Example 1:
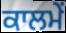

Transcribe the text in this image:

ਕਾਲਮੇਂ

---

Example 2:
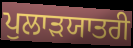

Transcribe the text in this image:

ਪੁਲਾੜਯਾਤਰੀ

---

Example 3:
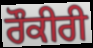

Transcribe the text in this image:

ਰੌਕੀਰੀ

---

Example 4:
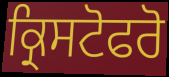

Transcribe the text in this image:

ਕ੍ਰਿਸਟੋਫਰੋ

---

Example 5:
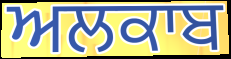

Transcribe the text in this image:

ਅਲਕਾਬ